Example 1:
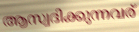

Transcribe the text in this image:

ആസ്വദിക്കുന്നവര്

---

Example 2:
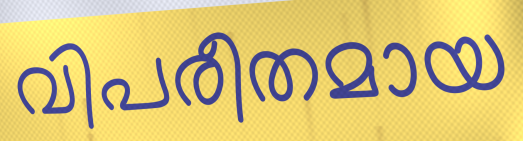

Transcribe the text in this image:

വിപരീതമായ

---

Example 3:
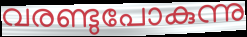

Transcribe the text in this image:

വരണ്ടുപോകുന്നു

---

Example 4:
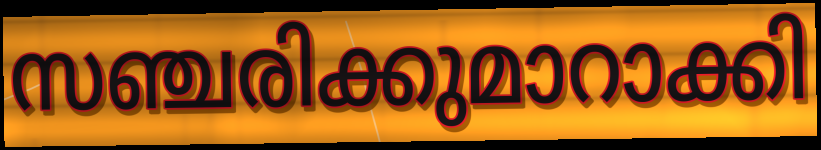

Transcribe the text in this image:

സഞ്ചരിക്കുമാറാക്കി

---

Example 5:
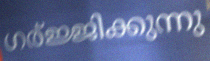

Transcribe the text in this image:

ഗര്ജ്ജിക്കുന്നു